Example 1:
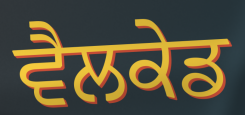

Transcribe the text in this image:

ਵੈਲਕੇਡ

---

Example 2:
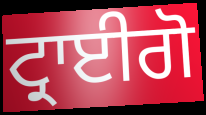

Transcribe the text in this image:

ਟ੍ਰਾਈਗੋ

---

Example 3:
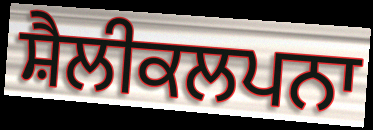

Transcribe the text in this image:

ਸ਼ੈਲੀਕਲਪਨਾ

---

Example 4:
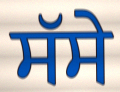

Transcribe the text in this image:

ਸੱਸੇ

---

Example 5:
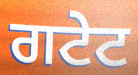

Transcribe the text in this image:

ਗਟੇਟ